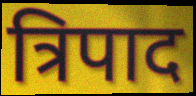
त्रिपाद